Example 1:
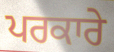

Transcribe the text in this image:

ਪਰਕਾਰੇ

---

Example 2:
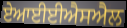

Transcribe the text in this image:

ਏਆਈਈਐਸਐਲ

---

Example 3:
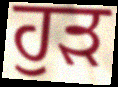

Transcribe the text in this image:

ਹੁੜ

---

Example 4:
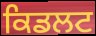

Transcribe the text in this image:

ਕਿਡਲਟ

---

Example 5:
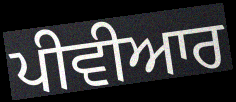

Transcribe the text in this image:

ਪੀਵੀਆਰ